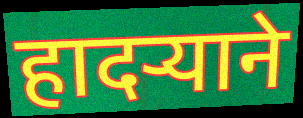
हादऱ्याने